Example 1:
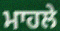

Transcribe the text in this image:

ਮਾਹਲੇ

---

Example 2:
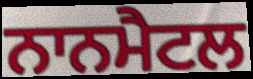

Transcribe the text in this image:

ਨਾਨਮੈਟਲ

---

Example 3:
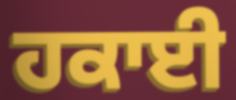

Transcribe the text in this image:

ਹਕਾਈ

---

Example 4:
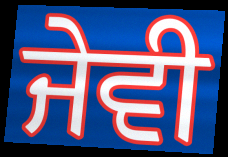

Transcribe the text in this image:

ਜੇਵੀ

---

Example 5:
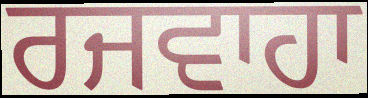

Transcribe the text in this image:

ਰਜਵਾਹਾ